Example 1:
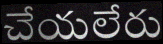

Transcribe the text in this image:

చేయలేరు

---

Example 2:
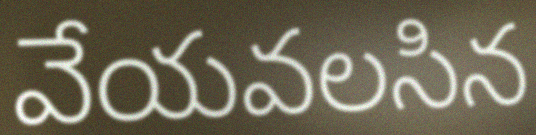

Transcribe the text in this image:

వేయవలసిన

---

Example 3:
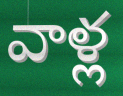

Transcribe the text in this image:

వాళ్ల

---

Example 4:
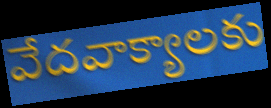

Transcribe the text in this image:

వేదవాక్యాలకు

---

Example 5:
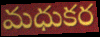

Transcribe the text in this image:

మధుకర